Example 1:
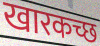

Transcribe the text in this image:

खारकच्छ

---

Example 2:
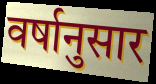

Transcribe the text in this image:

वर्षानुसार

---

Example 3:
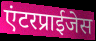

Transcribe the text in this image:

एंटरप्राईजेस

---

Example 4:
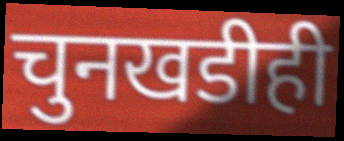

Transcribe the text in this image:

चुनखडीही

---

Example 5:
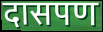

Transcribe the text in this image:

दासपण